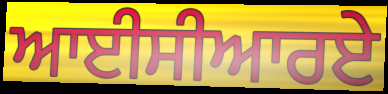
ਆਈਸੀਆਰਏ